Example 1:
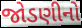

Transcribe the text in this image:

જોડણીનો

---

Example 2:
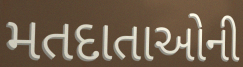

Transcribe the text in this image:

મતદાતાઓની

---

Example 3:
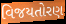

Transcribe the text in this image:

વિજયતોરણ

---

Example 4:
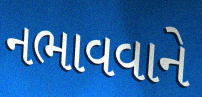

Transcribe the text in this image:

નભાવવાને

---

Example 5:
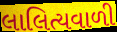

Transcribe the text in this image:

લાલિત્યવાળી